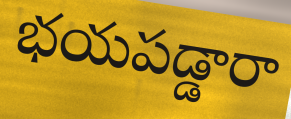
భయపడ్డారా